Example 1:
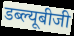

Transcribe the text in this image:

डब्ल्यूबीजी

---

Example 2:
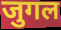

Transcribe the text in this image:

जुगल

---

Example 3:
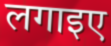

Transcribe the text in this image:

लगाइए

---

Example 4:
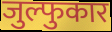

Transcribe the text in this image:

जुल्फुकार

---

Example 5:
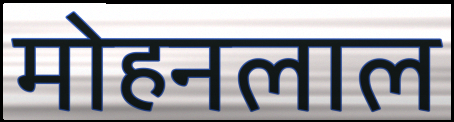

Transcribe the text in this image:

मोहनलाल